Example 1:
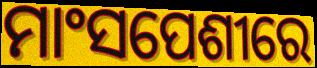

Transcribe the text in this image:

ମାଂସପେଶୀରେ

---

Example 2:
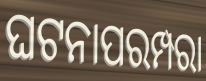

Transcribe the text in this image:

ଘଟନାପରମ୍ପରା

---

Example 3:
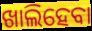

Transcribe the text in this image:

ଖାଲିହେବା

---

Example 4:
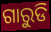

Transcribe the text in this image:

ଗାରୁଡି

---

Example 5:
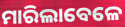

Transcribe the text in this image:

ମାରିଲାବେଳେ